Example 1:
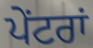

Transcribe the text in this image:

ਪੇਂਟਰਾਂ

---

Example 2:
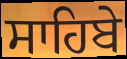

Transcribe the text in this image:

ਸਾਹਿਬੇ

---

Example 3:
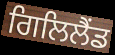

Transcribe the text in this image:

ਗਿਲਿਲੈਂਡ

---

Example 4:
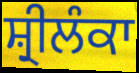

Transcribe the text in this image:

ਸ਼੍ਰੀਲੰਕਾ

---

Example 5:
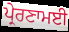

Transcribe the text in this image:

ਪ੍ਰੇਰਣਾਮਈ